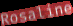
Rosaline